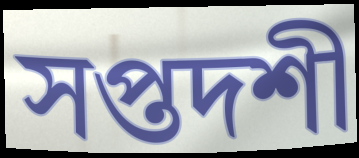
সপ্তদশী